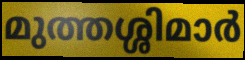
മുത്തശ്ശിമാർ